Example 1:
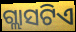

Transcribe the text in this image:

ଗ୍ଲାସଟିଏ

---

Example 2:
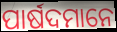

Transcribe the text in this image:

ପାର୍ଷଦମାନେ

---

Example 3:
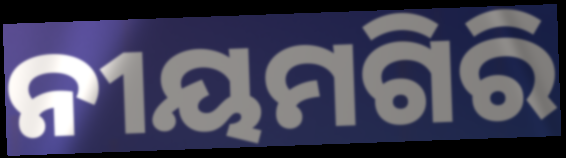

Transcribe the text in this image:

ନୀୟମଗିରି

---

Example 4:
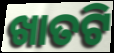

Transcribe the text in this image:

ଖାତଟି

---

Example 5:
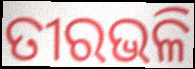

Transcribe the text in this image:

ତୀରଭଳି